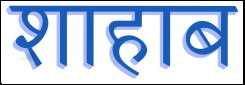
शाहाब